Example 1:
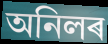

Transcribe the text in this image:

অনিলৰ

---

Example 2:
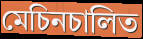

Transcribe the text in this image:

মেচিনচালিত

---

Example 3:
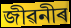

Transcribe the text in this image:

জীৱনীৰ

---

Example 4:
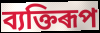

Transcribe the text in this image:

ব্যক্তিৰূপ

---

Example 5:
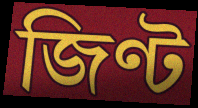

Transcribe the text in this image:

জিণ্ট